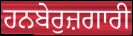
ਹਨਬੇਰੁਜ਼ਗਾਰੀ